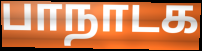
பாநாடக